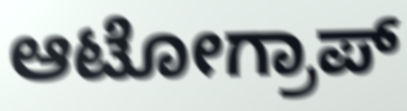
ಆಟೋಗ್ರಾಪ್